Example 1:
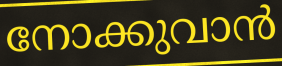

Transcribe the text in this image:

നോക്കുവാൻ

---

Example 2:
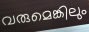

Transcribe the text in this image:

വരുമെങ്കിലും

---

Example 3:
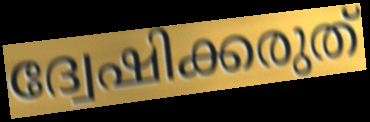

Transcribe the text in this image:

ദ്വേഷിക്കരുത്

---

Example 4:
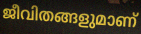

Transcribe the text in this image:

ജീവിതങ്ങളുമാണ്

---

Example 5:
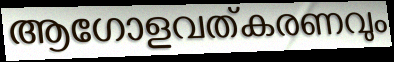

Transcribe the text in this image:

ആഗോളവത്കരണവും